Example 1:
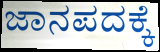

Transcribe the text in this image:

ಜಾನಪದಕ್ಕೆ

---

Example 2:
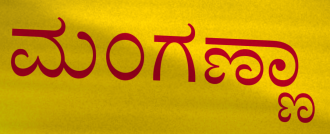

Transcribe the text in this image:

ಮಂಗಣ್ಣಾ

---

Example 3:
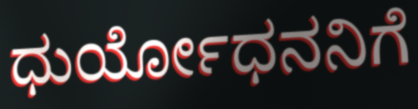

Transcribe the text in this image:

ಧುರ್ಯೋಧನನಿಗೆ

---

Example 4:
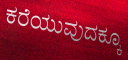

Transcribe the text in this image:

ಕರೆಯುವುದಕ್ಕೂ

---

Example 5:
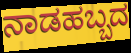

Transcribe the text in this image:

ನಾಡಹಬ್ಬದ